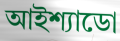
আইশ্যাডো